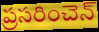
ప్రసరించెన్